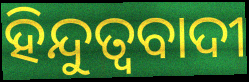
ହିନ୍ଦୁତ୍ୱବାଦୀ